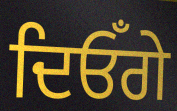
ਦਿਓਁਗੇ